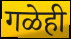
गळेही